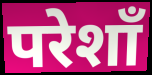
परेशाँ